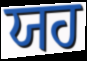
ਯਹ